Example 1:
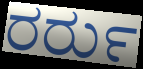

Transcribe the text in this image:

ರರ್ರು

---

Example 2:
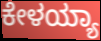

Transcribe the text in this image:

ಕೇಳಯ್ಯಾ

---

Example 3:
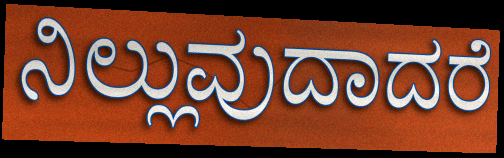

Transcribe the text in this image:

ನಿಲ್ಲುವುದಾದರೆ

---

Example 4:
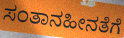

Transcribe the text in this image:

ಸಂತಾನಹೀನತೆಗೆ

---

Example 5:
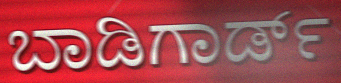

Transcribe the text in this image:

ಬಾಡಿಗಾರ್ಡ್